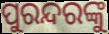
ପୁରନ୍ଦରଙ୍କୁ